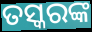
ତସ୍କରଙ୍କ